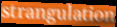
strangulation